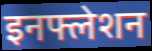
इनफ्लेशन